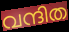
വന്ദിത